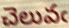
చెలువఁ